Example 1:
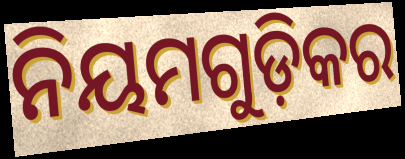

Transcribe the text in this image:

ନିୟମଗୁଡ଼ିକର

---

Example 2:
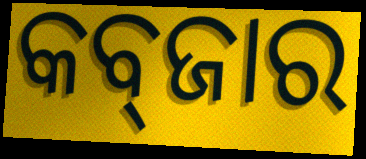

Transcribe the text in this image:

କବ୍‌ଜାର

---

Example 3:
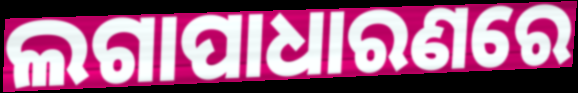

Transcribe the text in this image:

ଲଗାପାଧାରଣରେ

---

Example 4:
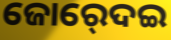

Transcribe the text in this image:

ଜୋର୍‍ଦେଇ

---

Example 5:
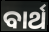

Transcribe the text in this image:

ବାର୍ଥ